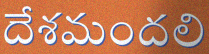
దేశమందలి